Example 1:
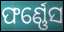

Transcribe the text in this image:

ଫର୍ଣ୍ଣେସ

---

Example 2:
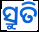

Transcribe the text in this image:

ସ୍ରୁତି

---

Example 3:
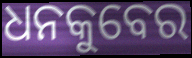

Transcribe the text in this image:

ଧନକୁବେର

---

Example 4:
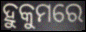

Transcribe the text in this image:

ହୁକୁମରେ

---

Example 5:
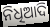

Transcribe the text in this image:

ନିଧିଆଦି